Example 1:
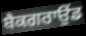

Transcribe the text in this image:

ਬੈਕਗਰਾਉਂਡ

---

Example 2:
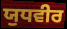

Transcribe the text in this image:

ਯੁਧਵੀਰ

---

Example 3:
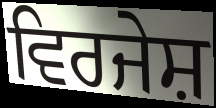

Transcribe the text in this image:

ਵਿਰਜੇਸ਼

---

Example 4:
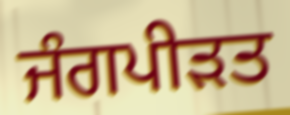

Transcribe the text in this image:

ਜੰਗਪੀੜਤ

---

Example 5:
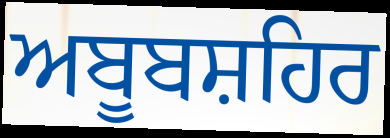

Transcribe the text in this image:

ਅਬੂਬਸ਼ਹਿਰ